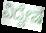
ವಿದ್ವೇಷ